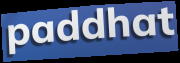
paddhat